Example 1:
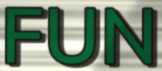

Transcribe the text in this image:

FUN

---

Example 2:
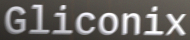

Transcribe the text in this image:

Gliconix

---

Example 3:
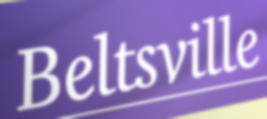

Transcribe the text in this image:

Beltsville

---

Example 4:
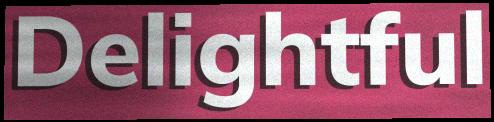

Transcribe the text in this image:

Delightful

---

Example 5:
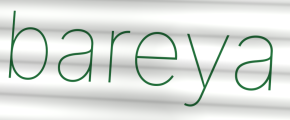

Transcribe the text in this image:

bareya